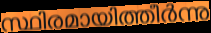
സ്ഥിരമായിത്തീർന്നു